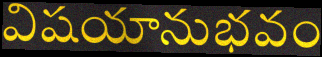
విషయానుభవం